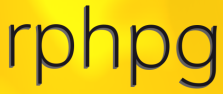
rphpg